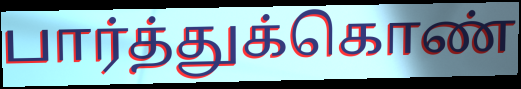
பார்த்துக்கொண்